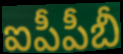
ఐపీపీబీ